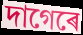
দাগেৰে